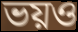
ভয়ও